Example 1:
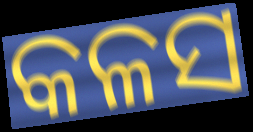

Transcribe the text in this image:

କଳସ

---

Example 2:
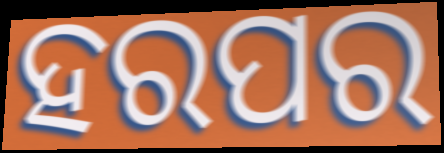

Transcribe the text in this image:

ହରପର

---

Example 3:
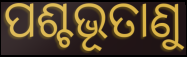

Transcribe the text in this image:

ପଶ୍ଚଭୂତାଣୁ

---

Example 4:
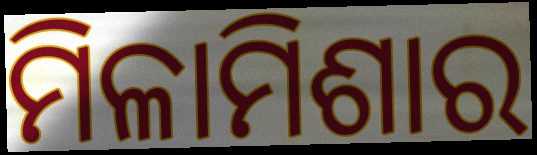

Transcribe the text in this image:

ମିଳାମିଶାର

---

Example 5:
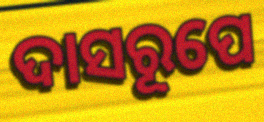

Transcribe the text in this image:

ଦାସରୂପେ